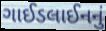
ગાઈડલાઈનનું